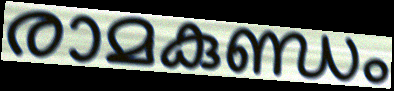
രാമകുണ്ഡം